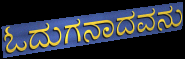
ಓದುಗನಾದವನು